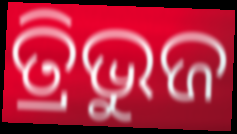
ତ୍ରିଭୁଜ